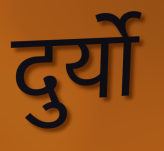
दुर्यो